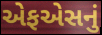
એફએસનું